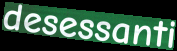
desessanti